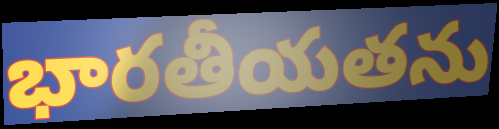
భారతీయతను